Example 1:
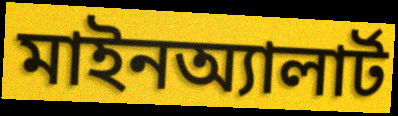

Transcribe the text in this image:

মাইনঅ্যালার্ট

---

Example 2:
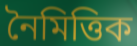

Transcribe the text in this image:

নৈমিত্তিক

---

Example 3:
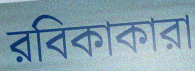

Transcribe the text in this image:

রবিকাকারা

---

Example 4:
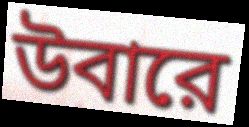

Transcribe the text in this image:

উবারে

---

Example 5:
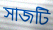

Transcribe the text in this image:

সাজটি